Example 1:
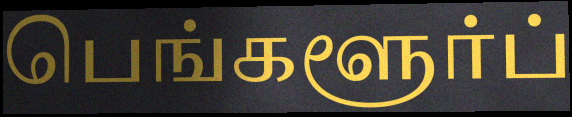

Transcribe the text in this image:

பெங்களூர்ப்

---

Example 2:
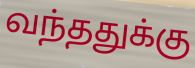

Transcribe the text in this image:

வந்ததுக்கு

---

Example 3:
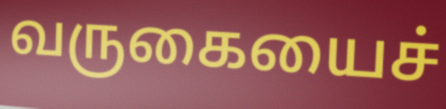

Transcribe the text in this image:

வருகையைச்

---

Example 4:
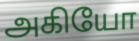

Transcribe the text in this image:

அகியோ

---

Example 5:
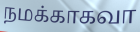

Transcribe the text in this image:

நமக்காகவா